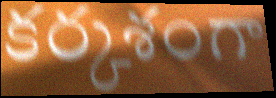
కర్కశంగా